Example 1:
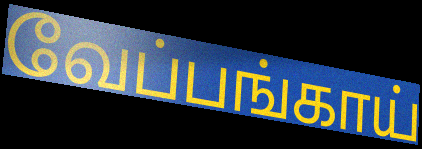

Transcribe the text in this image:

வேப்பங்காய்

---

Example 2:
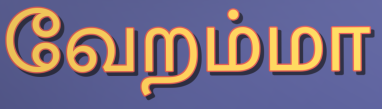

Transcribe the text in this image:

வேறம்மா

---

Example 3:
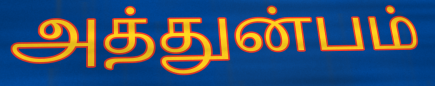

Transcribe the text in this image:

அத்துன்பம்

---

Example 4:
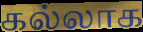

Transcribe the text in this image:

கல்லாக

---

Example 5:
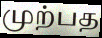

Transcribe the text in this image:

முற்பத